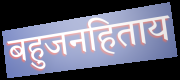
बहुजनहिताय